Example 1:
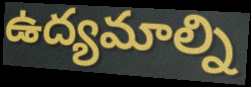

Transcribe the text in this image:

ఉద్యమాల్ని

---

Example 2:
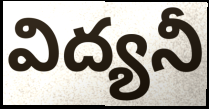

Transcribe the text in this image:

విద్యనీ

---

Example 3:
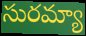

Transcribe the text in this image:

సురమ్యా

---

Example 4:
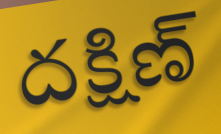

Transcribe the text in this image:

దక్షిణ్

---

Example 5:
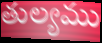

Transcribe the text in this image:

తుల్యము